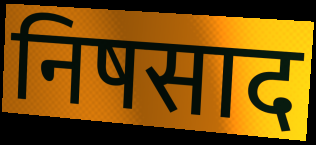
निषसाद